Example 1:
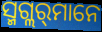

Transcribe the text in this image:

ସ୍ମଗ୍ଲର୍‌ମାନେ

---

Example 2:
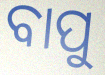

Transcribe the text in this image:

ବାପୁ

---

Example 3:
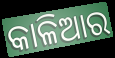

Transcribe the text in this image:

କାଳିଆର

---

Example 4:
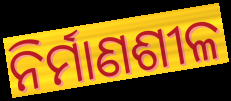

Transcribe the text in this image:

ନିର୍ମାଣଶୀଳ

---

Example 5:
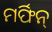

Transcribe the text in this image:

ମର୍ଫିନ୍